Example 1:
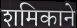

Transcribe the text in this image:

शमिकाने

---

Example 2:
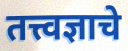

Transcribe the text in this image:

तत्त्वज्ञाचे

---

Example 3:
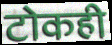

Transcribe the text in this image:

टोकही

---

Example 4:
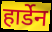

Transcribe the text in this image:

हार्डेन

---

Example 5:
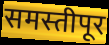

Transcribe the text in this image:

समस्तीपूर